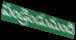
పండ్రెండుమంది